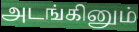
அடங்கினும்